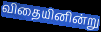
விதையினின்று